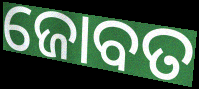
ଜୋବତ